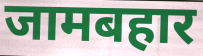
जामबहार